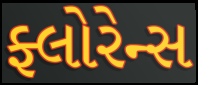
ફ્લોરેન્સ